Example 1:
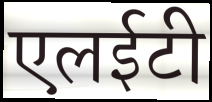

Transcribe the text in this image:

एलईटी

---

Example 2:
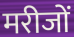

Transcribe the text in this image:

मरीजों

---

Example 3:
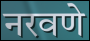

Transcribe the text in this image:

नरवणे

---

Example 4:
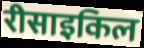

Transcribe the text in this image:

रीसाइकिल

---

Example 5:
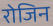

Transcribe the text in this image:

रोजिन